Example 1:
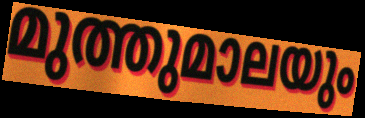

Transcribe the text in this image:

മുത്തുമാലയും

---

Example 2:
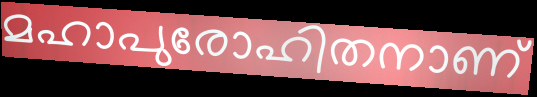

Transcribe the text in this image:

മഹാപുരോഹിതനാണ്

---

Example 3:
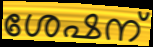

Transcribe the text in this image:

ശേഷന്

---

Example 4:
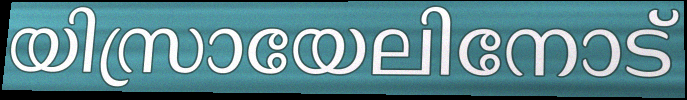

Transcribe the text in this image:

യിസ്രായേലിനോട്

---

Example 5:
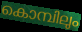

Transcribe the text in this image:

കൊമ്പിലും